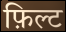
फ़िल्ट